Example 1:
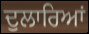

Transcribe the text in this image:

ਦੁਲਾਰਿਆਂ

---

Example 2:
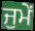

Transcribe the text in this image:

ਜੁਮੇਂ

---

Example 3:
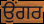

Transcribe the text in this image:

ਉਂਗਰ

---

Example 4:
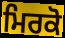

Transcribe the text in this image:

ਮਿਰਕੋ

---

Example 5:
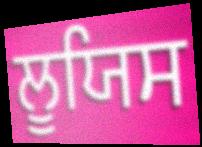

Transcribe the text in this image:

ਲੂਯਿਸ